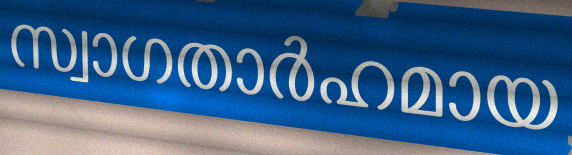
സ്വാഗതാർഹമായ